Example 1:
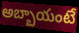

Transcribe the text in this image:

అబ్బాయంటే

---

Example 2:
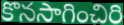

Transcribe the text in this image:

కొనసాగించిరి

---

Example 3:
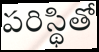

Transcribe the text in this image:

పరిస్థితో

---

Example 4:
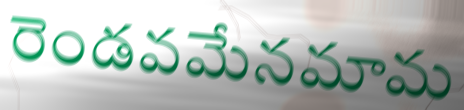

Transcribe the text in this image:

రెండవమేనమామ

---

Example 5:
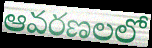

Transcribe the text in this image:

ఆవరణలలో